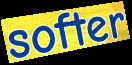
softer